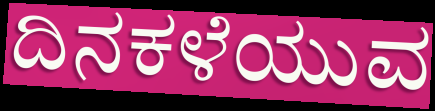
ದಿನಕಳೆಯುವ